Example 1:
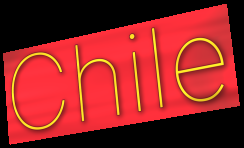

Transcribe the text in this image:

Chile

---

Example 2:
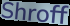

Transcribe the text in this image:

Shroff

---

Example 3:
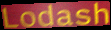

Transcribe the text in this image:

Lodash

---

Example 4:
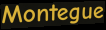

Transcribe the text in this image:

Montegue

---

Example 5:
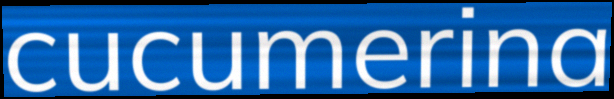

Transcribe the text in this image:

cucumerina